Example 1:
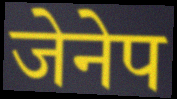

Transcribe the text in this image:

जेनेप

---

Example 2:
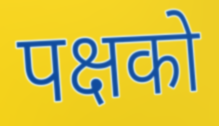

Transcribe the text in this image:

पक्षको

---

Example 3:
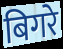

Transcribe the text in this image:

बिगरे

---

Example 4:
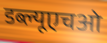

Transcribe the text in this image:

डब्ल्यूएचओ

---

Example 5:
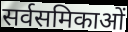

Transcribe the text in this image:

सर्वसमिकाओं